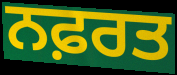
ਨਫ਼ਰਤ